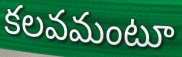
కలవమంటూ